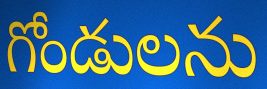
గోండులను